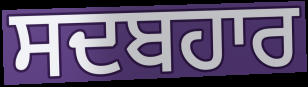
ਸਦਬਹਾਰ